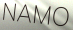
NAMO